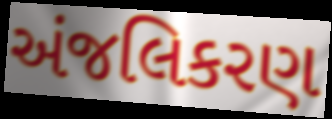
અંજલિકરણ